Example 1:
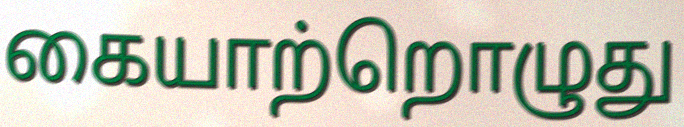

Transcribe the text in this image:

கையாற்றொழுது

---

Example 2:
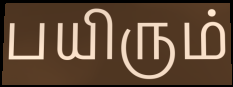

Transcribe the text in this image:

பயிரும்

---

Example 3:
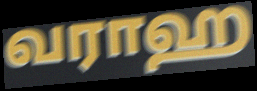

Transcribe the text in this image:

வராஹ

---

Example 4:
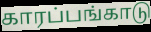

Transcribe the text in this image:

காரப்பங்காடு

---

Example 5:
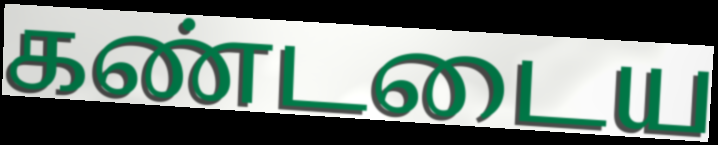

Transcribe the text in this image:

கண்டடைய